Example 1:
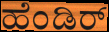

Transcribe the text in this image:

ಹೆಂಡಿರ್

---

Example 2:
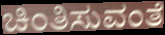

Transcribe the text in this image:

ಚಿಂತಿಸುವಂತೆ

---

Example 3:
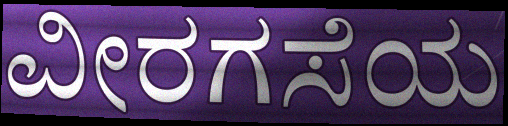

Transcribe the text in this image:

ವೀರಗಸೆಯ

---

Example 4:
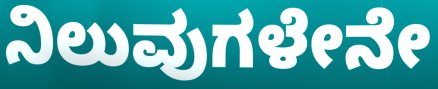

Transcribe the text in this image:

ನಿಲುವುಗಳೇನೇ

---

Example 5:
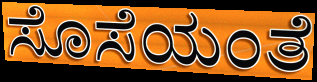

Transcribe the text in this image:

ಸೊಸೆಯಂತೆ